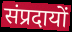
संप्रदायों